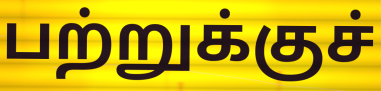
பற்றுக்குச்